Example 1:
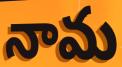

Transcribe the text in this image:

నామ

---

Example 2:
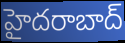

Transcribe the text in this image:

హైదరాబాద్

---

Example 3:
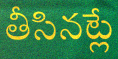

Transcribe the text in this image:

తీసినట్లే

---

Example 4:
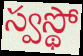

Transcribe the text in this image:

స్వస్థో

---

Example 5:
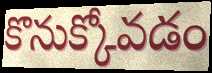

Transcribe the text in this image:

కొనుక్కోవడం